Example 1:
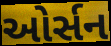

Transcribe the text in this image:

ઓર્સન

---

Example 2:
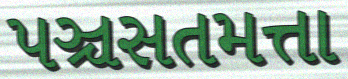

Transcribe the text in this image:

પઞ્ચસતમત્તા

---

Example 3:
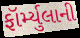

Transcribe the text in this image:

ફૉર્મ્યુલાની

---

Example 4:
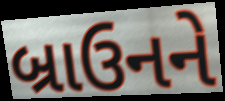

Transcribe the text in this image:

બ્રાઉનને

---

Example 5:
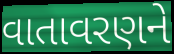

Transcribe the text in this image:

વાતાવરણને